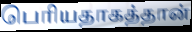
பெரியதாகத்தான்